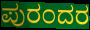
ಪುರಂದರ